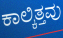
ಕಾಲ್ಕಿತ್ತವು